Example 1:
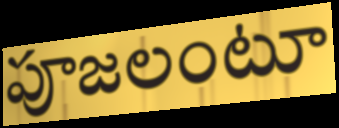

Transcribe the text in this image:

పూజలంటూ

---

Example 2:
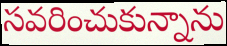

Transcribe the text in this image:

సవరించుకున్నాను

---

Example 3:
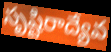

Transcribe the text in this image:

సృష్టిరాద్యేవ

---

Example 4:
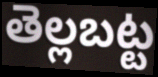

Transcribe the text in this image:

తెల్లబట్ట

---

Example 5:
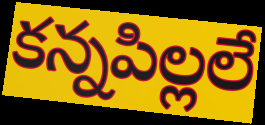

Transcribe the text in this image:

కన్నపిల్లలే